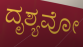
ದೃಶ್ಯವೋ